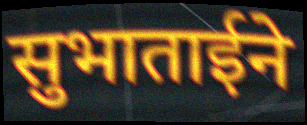
सुभाताईने